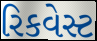
રિકવેસ્ટ